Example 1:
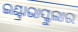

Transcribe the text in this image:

ଇଣ୍ଟ୍ରାଭାସ୍କୁଲାର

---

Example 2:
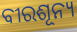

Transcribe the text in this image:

ବୀରଶୂନ୍ୟ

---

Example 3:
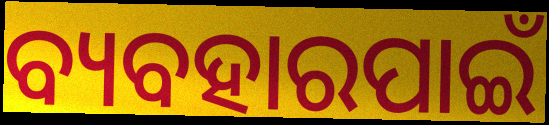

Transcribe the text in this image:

ବ୍ୟବହାରପାଇଁ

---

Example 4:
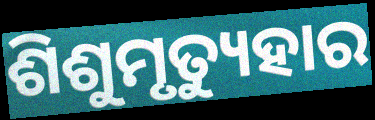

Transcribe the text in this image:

ଶିଶୁମୃତ୍ୟୁହାର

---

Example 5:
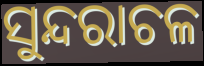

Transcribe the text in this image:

ସୁନ୍ଦରାଚଳ